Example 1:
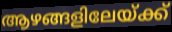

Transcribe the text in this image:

ആഴങ്ങളിലേയ്ക്ക്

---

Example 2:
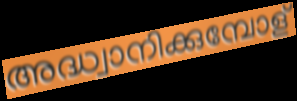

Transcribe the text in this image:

അദ്ധ്വാനിക്കുമ്പോള്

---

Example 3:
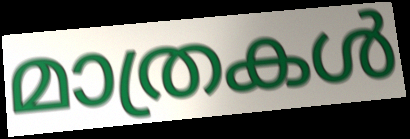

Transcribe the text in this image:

മാത്രകൾ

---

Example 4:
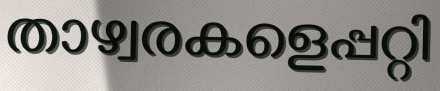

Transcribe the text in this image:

താഴ്വരകളെപ്പറ്റി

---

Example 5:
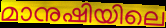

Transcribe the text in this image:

മാനുഷിയിലെ